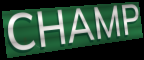
CHAMP